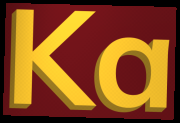
Ka